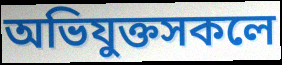
অভিযুক্তসকলে